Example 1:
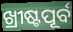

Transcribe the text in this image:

ଖ୍ରୀଷ୍ଟପୂର୍ବ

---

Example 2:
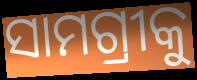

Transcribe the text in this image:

ସାମଗ୍ରୀକୁ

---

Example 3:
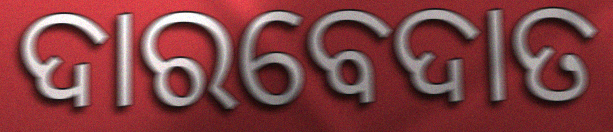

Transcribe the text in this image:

ଦାରବେଦାତ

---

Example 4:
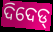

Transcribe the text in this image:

ଦିଦେଡ୍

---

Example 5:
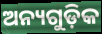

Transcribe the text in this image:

ଅନ୍ୟଗୁଡ଼ିକ